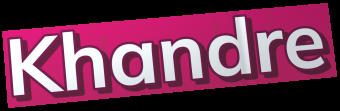
Khandre